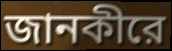
জানকীরে